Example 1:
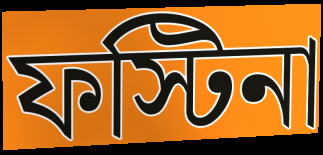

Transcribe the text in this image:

ফস্টিনা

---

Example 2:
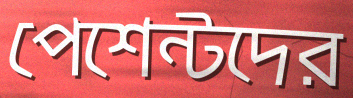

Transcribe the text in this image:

পেশেন্টদের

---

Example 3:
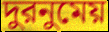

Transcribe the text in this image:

দুরনুমেয়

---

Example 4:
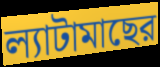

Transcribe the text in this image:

ল্যাটামাছের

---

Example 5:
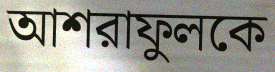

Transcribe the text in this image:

আশরাফুলকে